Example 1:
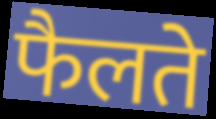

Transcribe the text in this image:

फैलते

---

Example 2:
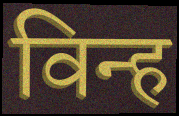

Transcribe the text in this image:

विन्ह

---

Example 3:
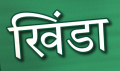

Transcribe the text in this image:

खिंडा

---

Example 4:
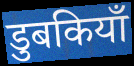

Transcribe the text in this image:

डुबकियाँ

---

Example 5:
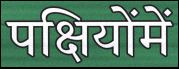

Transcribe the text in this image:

पक्षियोंमें